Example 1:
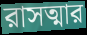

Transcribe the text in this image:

রাসত্মার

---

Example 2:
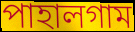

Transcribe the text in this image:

পাহালগাম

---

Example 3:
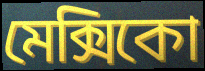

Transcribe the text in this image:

মেক্সিকো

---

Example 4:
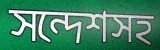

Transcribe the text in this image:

সন্দেশসহ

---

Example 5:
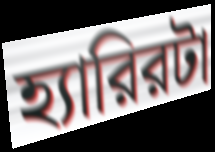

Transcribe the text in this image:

হ্যারিরটা